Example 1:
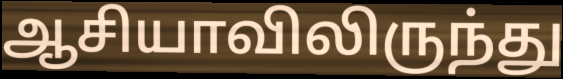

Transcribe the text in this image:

ஆசியாவிலிருந்து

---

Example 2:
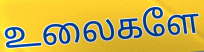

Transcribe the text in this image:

உலைகளே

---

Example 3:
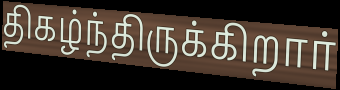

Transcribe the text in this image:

திகழ்ந்திருக்கிறார்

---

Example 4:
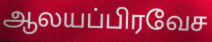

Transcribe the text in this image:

ஆலயப்பிரவேச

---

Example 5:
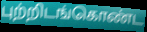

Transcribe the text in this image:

புற்றிடங்கொண்ட